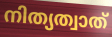
നിത്യത്വാത്